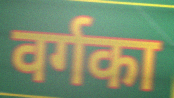
वर्गका